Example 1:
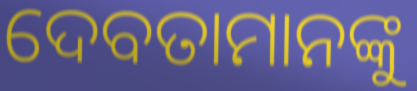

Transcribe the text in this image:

ଦେବତାମାନଙ୍କୁ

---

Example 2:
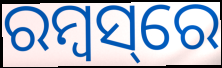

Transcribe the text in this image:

ରମ୍ବସ୍‌ରେ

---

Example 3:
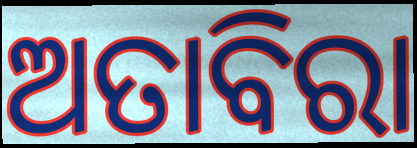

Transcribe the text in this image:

ଅତାବିରା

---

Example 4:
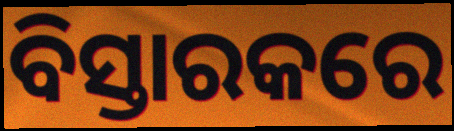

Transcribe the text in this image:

ବିସ୍ତାରକରେ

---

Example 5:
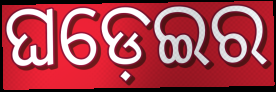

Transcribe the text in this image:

ଘଡ଼େଇର